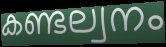
കണ്ടല്വനം